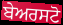
ਬੇਅਰਸਟੋ